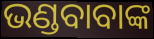
ଭଣ୍ଡବାବାଙ୍କ